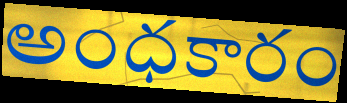
అంధకారం